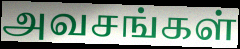
அவசங்கள்